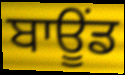
ਬਾਊਂਡ